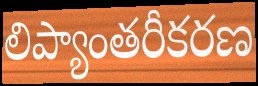
లిప్యాంతరీకరణ